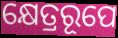
କ୍ଷେତ୍ରରୂପେ